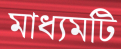
মাধ্যমটি